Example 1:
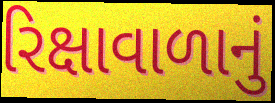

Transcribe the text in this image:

રિક્ષાવાળાનું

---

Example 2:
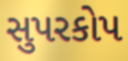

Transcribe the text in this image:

સુપરકોપ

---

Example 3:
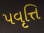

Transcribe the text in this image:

પવૃત્તિ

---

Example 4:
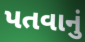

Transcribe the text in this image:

પતવાનું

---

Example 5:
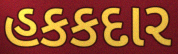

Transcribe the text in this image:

હકકદાર